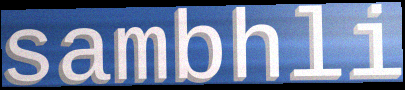
sambhli